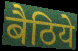
बैठिये